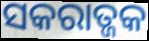
ସକରାତ୍ଜକ